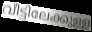
വീട്ടിലേക്കുള്ള